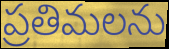
ప్రతిమలను